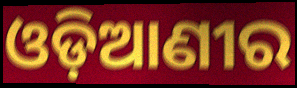
ଓଡ଼ିଆଣୀର